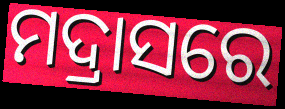
ମଦ୍ରାସରେ